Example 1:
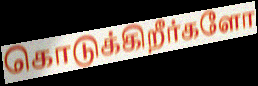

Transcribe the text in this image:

கொடுக்கிறீர்களோ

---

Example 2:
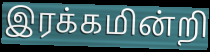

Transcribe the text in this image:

இரக்கமின்றி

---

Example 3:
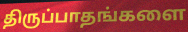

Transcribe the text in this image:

திருப்பாதங்களை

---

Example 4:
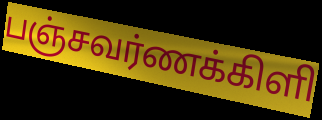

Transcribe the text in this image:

பஞ்சவர்ணக்கிளி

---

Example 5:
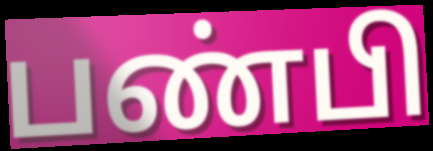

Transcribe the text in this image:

பண்பி